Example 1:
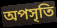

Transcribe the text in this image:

অপসৃতি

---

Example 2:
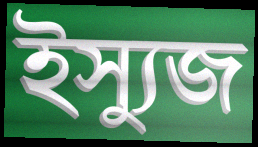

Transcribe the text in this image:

ইস্যুজ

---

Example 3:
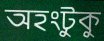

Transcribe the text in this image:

অহংটুকু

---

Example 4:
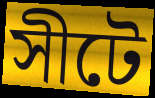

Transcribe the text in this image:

সীটে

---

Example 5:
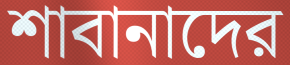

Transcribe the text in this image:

শাবানাদের